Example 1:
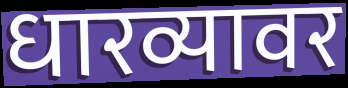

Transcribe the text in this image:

धारव्यावर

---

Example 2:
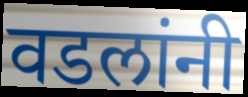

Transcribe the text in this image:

वडलांनी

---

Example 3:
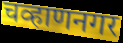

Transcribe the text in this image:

चव्हाणनगर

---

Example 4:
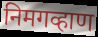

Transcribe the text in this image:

निमगव्हाण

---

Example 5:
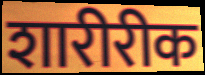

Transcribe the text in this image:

शारीरीक